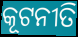
କୂଟନୀତି